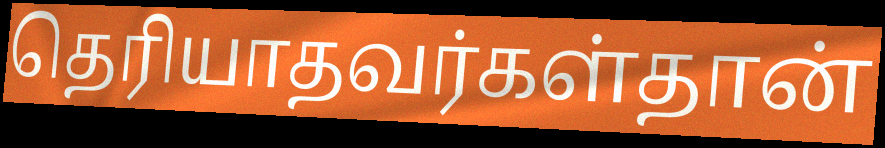
தெரியாதவர்கள்தான்